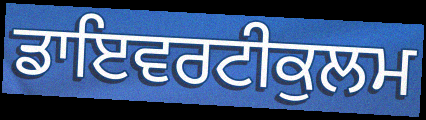
ਡਾਇਵਰਟੀਕੁਲਮ